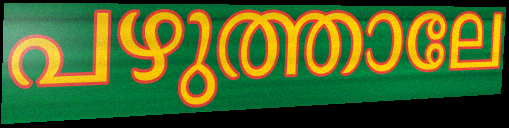
പഴുത്താലേ